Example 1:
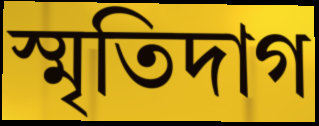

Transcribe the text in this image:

স্মৃতিদাগ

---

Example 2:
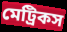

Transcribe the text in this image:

মেট্রিকস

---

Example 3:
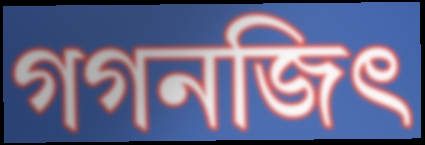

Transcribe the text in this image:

গগনজিৎ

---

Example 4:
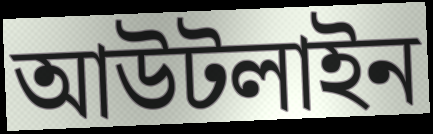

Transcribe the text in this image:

আউটলাইন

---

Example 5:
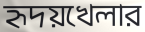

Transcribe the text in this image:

হৃদয়খেলার